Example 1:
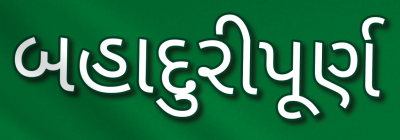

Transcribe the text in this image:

બહાદુરીપૂર્ણ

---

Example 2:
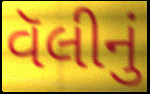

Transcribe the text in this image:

વૅલીનું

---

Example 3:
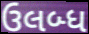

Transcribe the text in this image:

ઉલબ્ધ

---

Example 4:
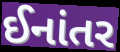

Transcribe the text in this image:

ઈનાંતર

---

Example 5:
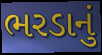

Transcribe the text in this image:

ભરડાનું